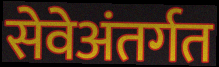
सेवेअंतर्गत